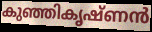
കുഞ്ഞികൃഷ്ണൻ